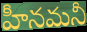
హీనమనీ